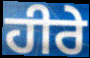
ਹੀਰੇ